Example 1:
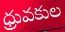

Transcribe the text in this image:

ధ్రువకుల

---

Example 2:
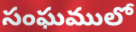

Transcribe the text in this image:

సంఘములో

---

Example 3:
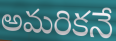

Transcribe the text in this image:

అమరికనే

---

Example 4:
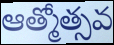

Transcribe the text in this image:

ఆత్మోత్సవ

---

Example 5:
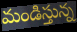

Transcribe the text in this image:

మండిస్తున్న